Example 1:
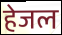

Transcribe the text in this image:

हेजल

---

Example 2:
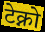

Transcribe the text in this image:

टेक्नो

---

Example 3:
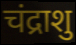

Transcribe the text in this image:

चंद्राशु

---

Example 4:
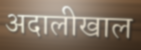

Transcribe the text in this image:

अदालीखाल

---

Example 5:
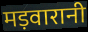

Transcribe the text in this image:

मड़वारानी